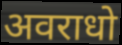
अवराधो